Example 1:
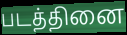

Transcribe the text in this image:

படத்தினை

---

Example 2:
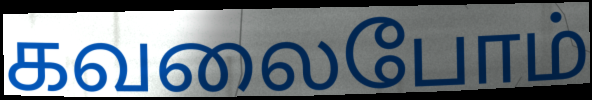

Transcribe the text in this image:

கவலைபோம்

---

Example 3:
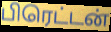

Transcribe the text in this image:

பிரெட்டன்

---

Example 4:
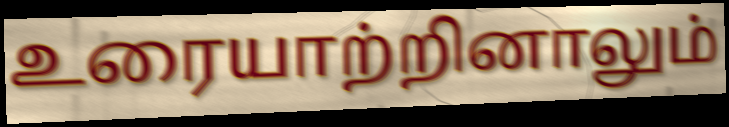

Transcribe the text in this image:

உரையாற்றினாலும்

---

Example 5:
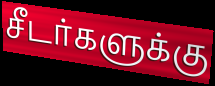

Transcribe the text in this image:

சீடர்களுக்கு